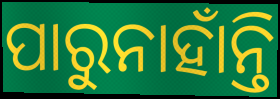
ପାରୁନାହାଁନ୍ତି